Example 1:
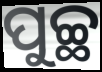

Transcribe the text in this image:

ପୁଚ୍ଛ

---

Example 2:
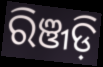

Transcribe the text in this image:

ରିଞ୍ଜଡ଼ି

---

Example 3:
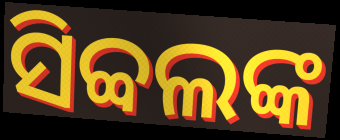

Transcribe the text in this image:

ସିବ୍ବଲଙ୍କ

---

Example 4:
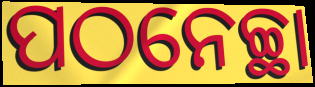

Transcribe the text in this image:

ପଠନେଚ୍ଛା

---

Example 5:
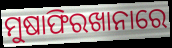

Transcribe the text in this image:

ମୁଷାଫିରଖାନାରେ